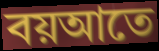
বয়আতে